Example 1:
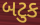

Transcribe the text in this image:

બટુક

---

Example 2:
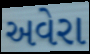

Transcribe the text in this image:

અવેરા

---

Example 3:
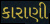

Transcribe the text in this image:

કારાણી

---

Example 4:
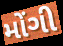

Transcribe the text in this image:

મોંગી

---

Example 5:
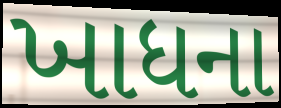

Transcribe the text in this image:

ખાધના